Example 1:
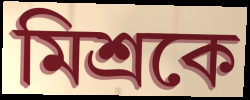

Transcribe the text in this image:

মিশ্রকে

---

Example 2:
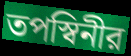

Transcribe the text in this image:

তপস্বিনীর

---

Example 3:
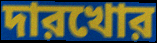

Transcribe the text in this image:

দারখোর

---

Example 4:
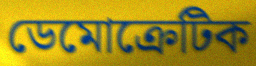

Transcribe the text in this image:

ডেমোক্রেটিক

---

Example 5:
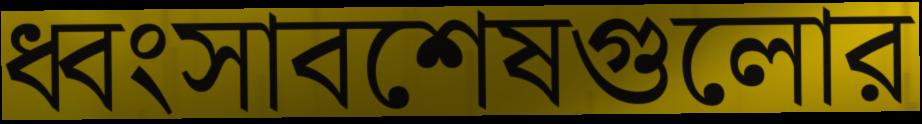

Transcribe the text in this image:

ধ্বংসাবশেষগুলোর